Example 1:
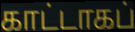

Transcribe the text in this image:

காட்டாகப்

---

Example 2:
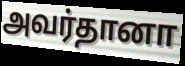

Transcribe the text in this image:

அவர்தானா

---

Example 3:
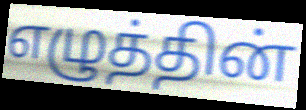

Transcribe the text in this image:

எழுத்தின்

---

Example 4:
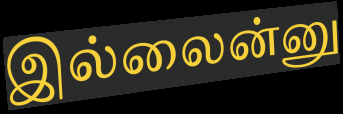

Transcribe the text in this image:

இல்லைன்னு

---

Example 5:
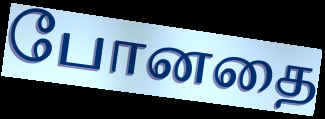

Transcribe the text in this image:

போனதை